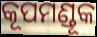
କୂପମଣ୍ଡୂକ